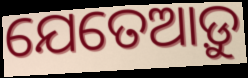
ଯେତେଆଡ଼ୁ